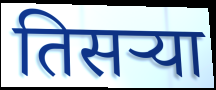
तिसऱ्या